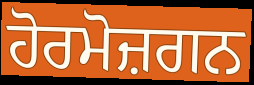
ਹੋਰਮੋਜ਼ਗਨ